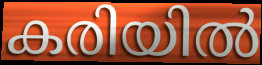
കരിയിൽ